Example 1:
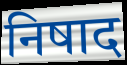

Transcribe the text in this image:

निषाद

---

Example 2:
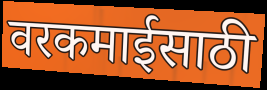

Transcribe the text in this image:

वरकमाईसाठी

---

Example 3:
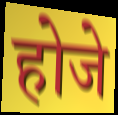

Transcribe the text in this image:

होजे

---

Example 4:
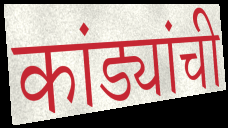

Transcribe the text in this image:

कांड्यांची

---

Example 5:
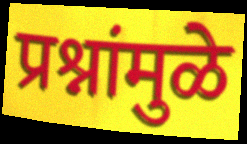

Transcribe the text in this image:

प्रश्नांमुळे